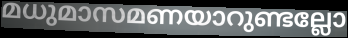
മധുമാസമണയാറുണ്ടല്ലോ